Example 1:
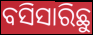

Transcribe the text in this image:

ବସିସାରିଛୁ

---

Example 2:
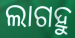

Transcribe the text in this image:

ଲାଗହୁ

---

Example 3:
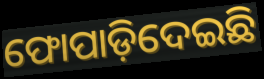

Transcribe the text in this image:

ଫୋପାଡ଼ିଦେଇଛି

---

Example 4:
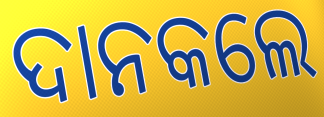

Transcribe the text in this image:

ଦାନକଲେ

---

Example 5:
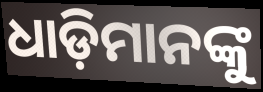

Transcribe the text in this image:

ଧାଡ଼ିମାନଙ୍କୁ